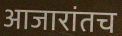
आजारांतच